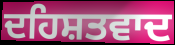
ਦਹਿਸ਼ਤਵਾਦ